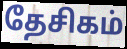
தேசிகம்